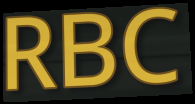
RBC